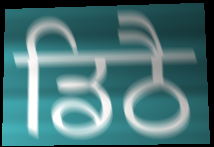
ਡਿਠੈ